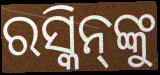
ରସ୍କିନ୍‌ଙ୍କୁ